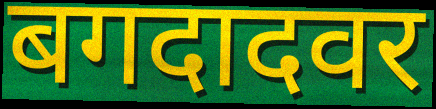
बगदादवर